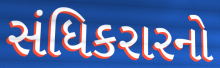
સંધિકરારનો